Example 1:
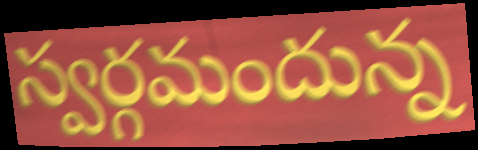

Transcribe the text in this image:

స్వర్గమందున్న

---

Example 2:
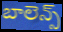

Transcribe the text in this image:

బాలెన్స్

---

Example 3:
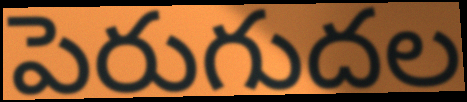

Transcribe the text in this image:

పెరుగుదల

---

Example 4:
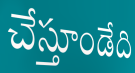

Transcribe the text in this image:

చేస్తూండేది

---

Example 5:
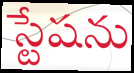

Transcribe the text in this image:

స్టేషను